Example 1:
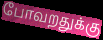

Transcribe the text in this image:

போவறதுக்கு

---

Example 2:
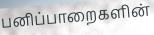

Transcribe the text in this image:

பனிப்பாறைகளின்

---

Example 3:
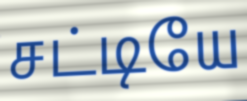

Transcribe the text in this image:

சட்டியே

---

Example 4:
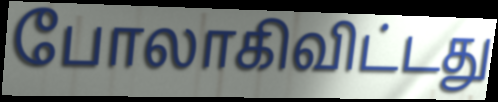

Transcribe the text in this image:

போலாகிவிட்டது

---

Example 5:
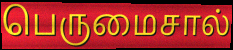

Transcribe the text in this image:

பெருமைசால்